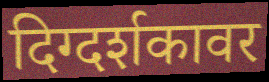
दिग्दर्शकावर